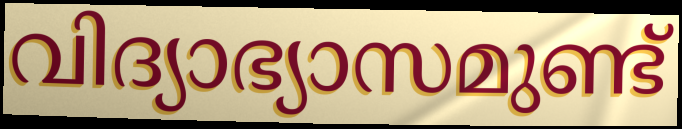
വിദ്യാഭ്യാസമുണ്ട്